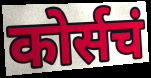
कोर्सचं